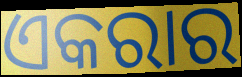
ଏକରାର